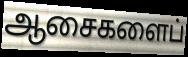
ஆசைகளைப்